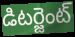
డిటర్జెంట్